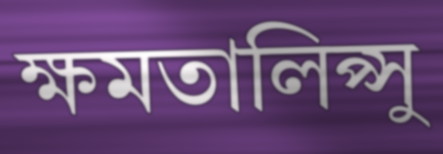
ক্ষমতালিপ্সু